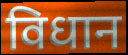
विधान